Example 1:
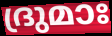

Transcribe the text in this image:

ദ്രുമാഃ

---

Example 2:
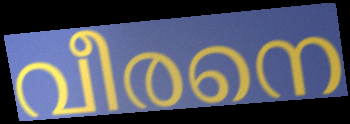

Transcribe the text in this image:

വീരനെ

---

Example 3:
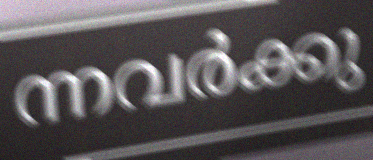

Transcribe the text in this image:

ന്നവർക്കു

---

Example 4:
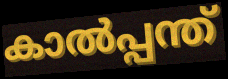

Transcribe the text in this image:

കാൽപ്പന്ത്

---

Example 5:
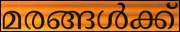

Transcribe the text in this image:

മരങ്ങൾക്ക്